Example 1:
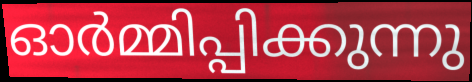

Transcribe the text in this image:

ഓർമ്മിപ്പിക്കുന്നു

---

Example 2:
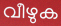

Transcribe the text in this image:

വീഴുക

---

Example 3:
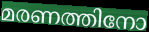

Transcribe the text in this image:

മരണത്തിനോ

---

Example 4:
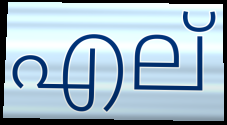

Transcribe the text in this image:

എല്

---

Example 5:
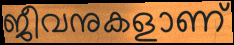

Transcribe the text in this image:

ജീവനുകളാണ്